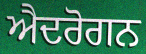
ਐਦਰੋਗਨ